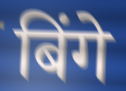
बिंगे